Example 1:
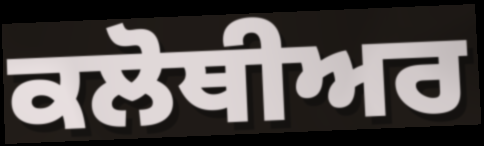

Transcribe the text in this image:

ਕਲੋਥੀਅਰ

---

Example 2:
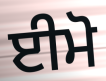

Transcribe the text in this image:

ਈਮੋ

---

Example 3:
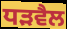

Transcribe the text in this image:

ਧੜਵੈਲ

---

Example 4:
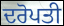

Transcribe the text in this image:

ਦਰੋਪਤੀ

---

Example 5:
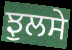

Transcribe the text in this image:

ਝੁਲਸੇ